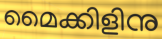
മൈക്കിളിനു